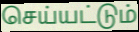
செய்யட்டும்